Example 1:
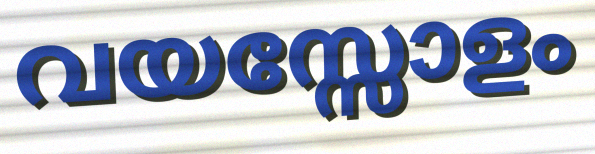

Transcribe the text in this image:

വയസ്സോളം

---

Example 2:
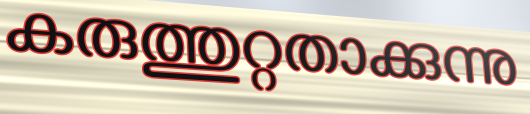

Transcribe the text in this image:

കരുത്തുറ്റതാക്കുന്നു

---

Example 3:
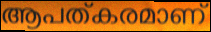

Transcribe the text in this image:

ആപത്കരമാണ്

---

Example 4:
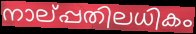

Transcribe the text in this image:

നാല്പ്പതിലധികം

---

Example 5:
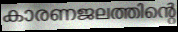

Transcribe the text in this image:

കാരണജലത്തിന്റെ